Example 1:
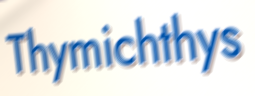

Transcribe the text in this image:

Thymichthys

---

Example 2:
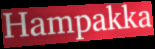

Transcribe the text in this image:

Hampakka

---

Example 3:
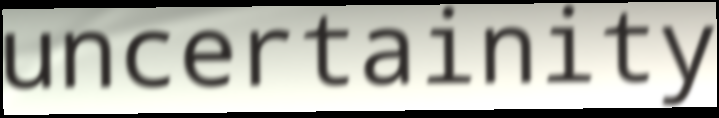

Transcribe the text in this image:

uncertainity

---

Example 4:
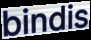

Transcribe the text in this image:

bindis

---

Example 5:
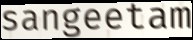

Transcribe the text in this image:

sangeetam